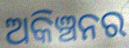
ଅକିଞ୍ଚନର